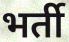
भर्ती